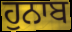
ਹੁਨਾਬ